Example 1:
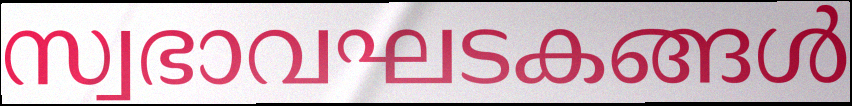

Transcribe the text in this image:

സ്വഭാവഘടകങ്ങൾ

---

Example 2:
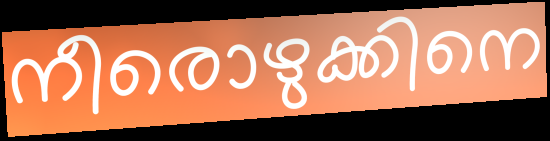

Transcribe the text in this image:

നീരൊഴുക്കിനെ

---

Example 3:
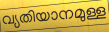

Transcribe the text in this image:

വ്യതിയാനമുള്ള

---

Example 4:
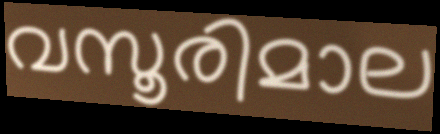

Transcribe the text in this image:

വസൂരിമാല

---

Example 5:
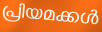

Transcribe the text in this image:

പ്രിയമക്കൾ